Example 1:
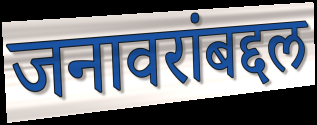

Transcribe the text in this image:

जनावरांबद्दल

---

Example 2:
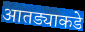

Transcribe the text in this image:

आतड्याकडे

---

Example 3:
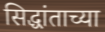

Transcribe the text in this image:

सिद्धांताच्या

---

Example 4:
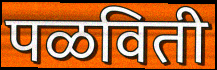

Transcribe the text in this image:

पळविती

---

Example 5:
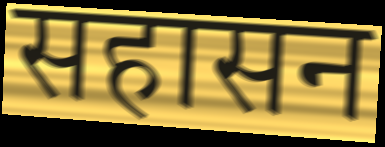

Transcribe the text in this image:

सहासन